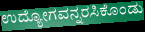
ಉದ್ಯೋಗವನ್ನರಸಿಕೊಂಡು